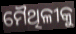
ମୈଥିଳୀକୁ